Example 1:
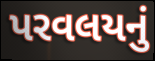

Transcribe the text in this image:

પરવલયનું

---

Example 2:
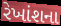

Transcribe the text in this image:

રેખાંશના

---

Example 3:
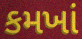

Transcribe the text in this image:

કમખાં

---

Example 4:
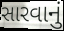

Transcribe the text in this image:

સારવાનું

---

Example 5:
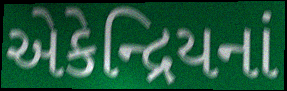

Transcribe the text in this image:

એકેન્દ્રિયનાં